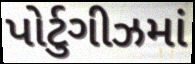
પોર્ટુગીઝમાં